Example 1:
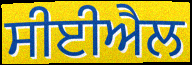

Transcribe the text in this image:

ਸੀਈਐਲ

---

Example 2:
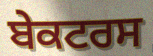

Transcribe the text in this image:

ਬੇਕਟਰਸ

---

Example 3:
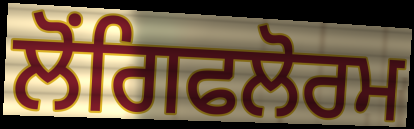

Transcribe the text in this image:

ਲੋਂਗਿਫਲੋਰਮ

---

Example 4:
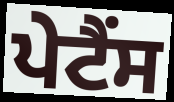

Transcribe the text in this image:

ਪੇਟੈਂਸ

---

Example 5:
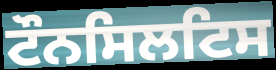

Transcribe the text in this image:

ਟੌਨਸਿਲਟਿਸ